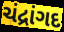
ચંદ્રાંગદ